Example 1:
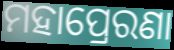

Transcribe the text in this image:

ମହାପ୍ରେରଣା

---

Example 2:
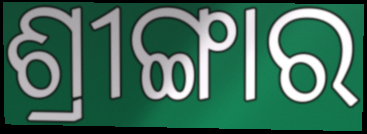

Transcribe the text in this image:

ଶ୍ରୀଙ୍ଗାର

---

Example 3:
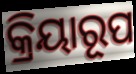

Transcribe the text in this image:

କ୍ରିୟାରୂପ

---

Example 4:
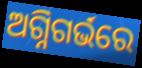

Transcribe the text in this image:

ଅଗ୍ନିଗର୍ଭରେ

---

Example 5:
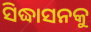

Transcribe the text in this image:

ସିଦ୍ଧାସନକୁ